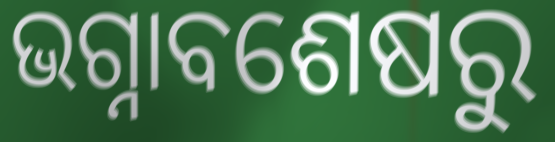
ଭଗ୍ନାବଶେଷରୁ